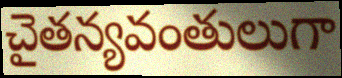
చైతన్యవంతులుగా